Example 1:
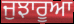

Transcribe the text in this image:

ਜੁਝਾਰੂਆ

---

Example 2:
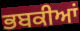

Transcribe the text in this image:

ਭਬਕੀਆਂ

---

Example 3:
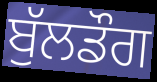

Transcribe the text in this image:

ਬੁੱਲਡੌਗ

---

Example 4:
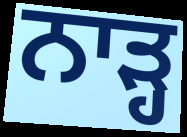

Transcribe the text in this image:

ਨਾੜ੍ਹ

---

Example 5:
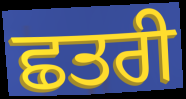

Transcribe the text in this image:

ਛਤਰੀ